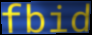
fbid